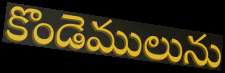
కొండెములును